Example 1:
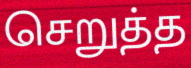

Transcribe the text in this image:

செறுத்த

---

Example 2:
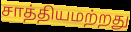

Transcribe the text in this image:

சாத்தியமற்றது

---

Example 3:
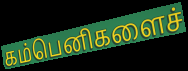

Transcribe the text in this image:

கம்பெனிகளைச்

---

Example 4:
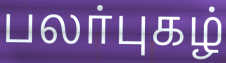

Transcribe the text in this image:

பலர்புகழ்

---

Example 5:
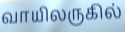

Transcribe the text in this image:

வாயிலருகில்